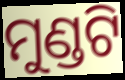
ମୁଣ୍ଡଟି